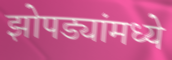
झोपड्यांमध्ये